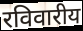
रविवारीय